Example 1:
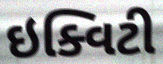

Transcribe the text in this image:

ઇક્વિટી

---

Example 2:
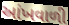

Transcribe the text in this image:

આંખવાળી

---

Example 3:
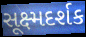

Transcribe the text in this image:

સૂક્ષ્મદર્શક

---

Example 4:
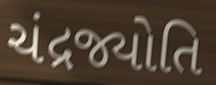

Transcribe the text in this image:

ચંદ્રજ્યોતિ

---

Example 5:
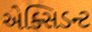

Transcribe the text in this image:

એક્સિડન્ટ